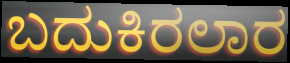
ಬದುಕಿರಲಾರ